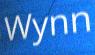
Wynn